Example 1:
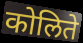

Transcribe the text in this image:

कोलिते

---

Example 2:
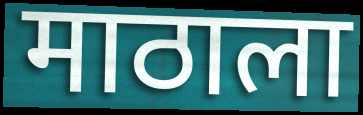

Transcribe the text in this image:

माठाला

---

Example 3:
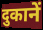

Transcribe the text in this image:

दुकानें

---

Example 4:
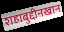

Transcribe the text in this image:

शहाबुद्दीनखान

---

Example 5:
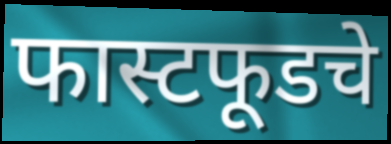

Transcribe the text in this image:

फास्टफूडचे